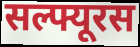
सल्फ्यूरस